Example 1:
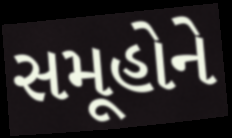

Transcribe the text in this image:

સમૂહોને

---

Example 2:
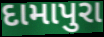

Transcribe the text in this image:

દામાપુરા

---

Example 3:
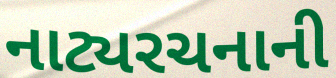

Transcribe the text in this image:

નાટ્યરચનાની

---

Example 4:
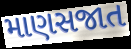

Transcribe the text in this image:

માણસજાત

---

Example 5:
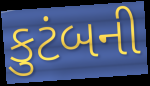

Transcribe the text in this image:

કુટંબની